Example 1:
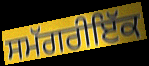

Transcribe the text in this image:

ਸਮੱਗਰੀਇੱਕ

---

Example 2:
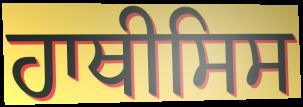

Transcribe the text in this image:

ਹਾਥੀਸਿਸ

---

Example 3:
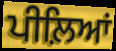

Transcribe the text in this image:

ਪੀਲ਼ਿਆਂ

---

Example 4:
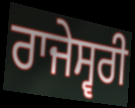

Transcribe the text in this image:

ਰਾਜੇਸ੍ਵਰੀ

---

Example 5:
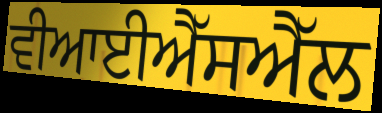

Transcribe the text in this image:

ਵੀਆਈਐੱਸਐੱਲ